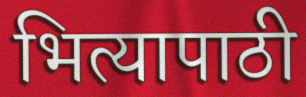
भित्यापाठी